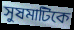
সুষমাটিকে